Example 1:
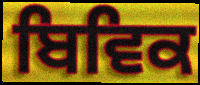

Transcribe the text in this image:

ਬਿਵਿਕ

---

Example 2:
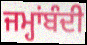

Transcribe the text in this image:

ਜਮ੍ਹਾਂਬੰਦੀ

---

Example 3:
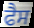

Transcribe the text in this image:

ਫੈਸ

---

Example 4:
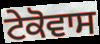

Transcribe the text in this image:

ਟੇਕੋਵਾਸ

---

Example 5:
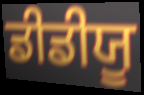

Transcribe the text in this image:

ਡੀਡੀਯੂ